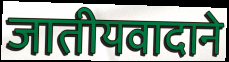
जातीयवादाने